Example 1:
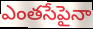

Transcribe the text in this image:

ఎంతసేపైనా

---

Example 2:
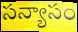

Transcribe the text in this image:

సన్యాసం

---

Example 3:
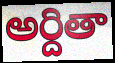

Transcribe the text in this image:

అర్దితా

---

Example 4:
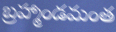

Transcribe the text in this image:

బ్రహ్మాండమంత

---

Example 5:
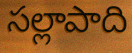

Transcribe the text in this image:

సల్లాపాది